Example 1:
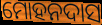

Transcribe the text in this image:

ମୋହନଦାସ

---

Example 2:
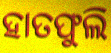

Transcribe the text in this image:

ହାତଫୁଲି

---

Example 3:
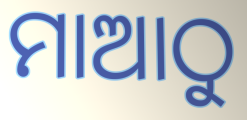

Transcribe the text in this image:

ମାଆଠୁ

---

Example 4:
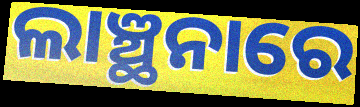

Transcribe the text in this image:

ଲାଞ୍ଛନାରେ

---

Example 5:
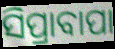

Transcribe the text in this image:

ସିପ୍ରାବାପା